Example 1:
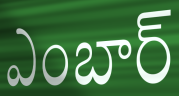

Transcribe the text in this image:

ఎంబార్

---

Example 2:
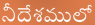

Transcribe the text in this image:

నీదేశములో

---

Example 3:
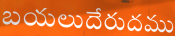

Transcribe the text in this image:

బయలుదేరుదము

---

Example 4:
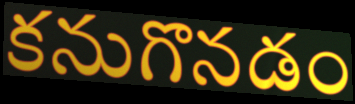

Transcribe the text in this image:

కనుగొనడం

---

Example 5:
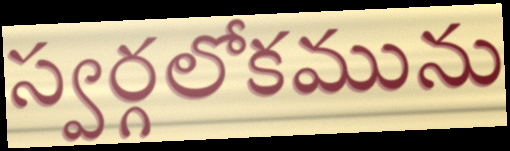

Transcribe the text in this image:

స్వర్గలోకమును